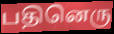
பதினெரு